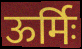
ऊर्मिः